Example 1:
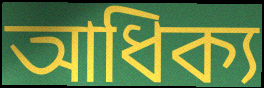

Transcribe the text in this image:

আধিক্য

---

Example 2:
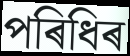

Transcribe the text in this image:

পৰিধিৰ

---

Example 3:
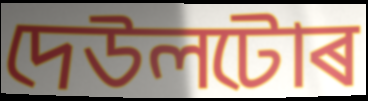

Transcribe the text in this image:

দেউলটোৰ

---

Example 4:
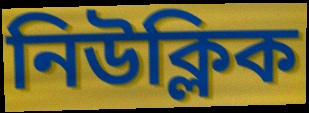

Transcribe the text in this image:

নিউক্লিক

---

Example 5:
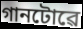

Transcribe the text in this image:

গানটোৱে